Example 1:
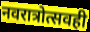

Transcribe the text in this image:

नवरात्रोत्सवही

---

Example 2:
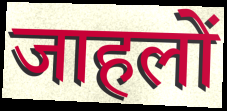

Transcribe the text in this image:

जाहलों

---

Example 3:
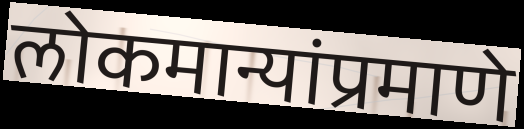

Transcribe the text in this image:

लोकमान्यांप्रमाणे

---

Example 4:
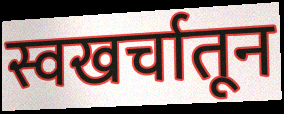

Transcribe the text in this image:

स्वखर्चातून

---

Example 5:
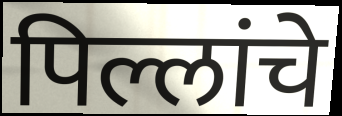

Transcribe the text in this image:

पिल्लांचे